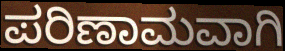
ಪರಿಣಾಮವಾಗಿ